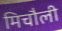
मिचौली